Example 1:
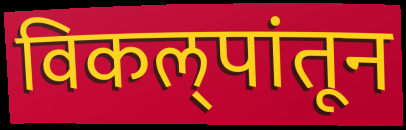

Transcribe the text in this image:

विकल्पांतून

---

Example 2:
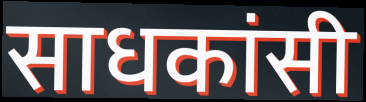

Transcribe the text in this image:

साधकांसी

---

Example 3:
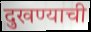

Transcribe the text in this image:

दुखण्याची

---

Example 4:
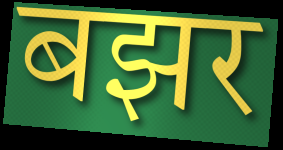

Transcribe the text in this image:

बझर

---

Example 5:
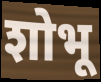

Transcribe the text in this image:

शोभू